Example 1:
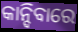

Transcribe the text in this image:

କାନ୍ଦିବାରେ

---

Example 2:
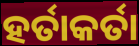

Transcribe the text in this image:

ହର୍ତାକର୍ତା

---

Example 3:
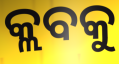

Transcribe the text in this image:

କ୍ଲବକୁ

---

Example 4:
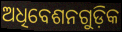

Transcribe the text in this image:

ଅଧିବେଶନଗୁଡ଼ିକ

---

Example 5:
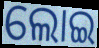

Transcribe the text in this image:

ଲୋଇ